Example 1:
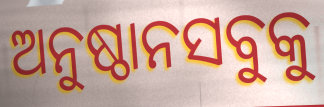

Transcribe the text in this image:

ଅନୁଷ୍ଠାନସବୁକୁ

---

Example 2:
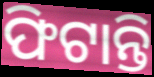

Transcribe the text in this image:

ଫିଟାନ୍ତି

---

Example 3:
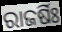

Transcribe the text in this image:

ରାଜର୍ଷିଃ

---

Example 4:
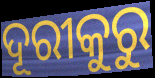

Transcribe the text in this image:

ଦୂରୀକୁରୁ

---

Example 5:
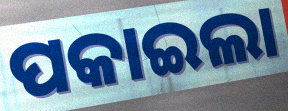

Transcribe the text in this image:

ପକାଇଲା